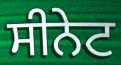
ਸੀਨੇਟ